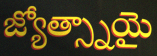
జ్యోత్స్నాయై